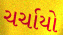
ચર્ચાયો